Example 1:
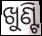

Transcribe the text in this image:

ଖୁଣ୍ଟି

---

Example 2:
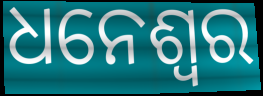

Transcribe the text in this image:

ଧନେଶ୍ବର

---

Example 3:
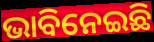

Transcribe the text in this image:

ଭାବିନେଇଛି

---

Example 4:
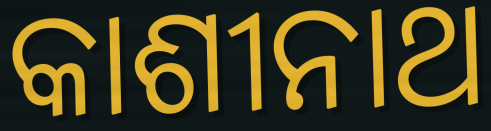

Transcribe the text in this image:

କାଶୀନାଥ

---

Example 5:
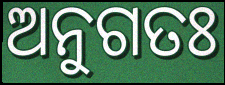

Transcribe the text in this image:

ଅନୁଗତଃ